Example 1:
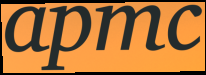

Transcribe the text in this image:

apmc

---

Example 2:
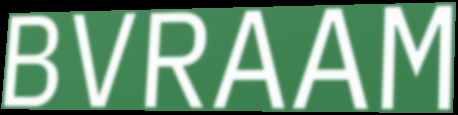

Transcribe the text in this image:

BVRAAM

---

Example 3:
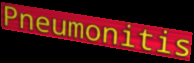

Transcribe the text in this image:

Pneumonitis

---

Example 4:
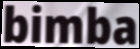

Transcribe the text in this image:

bimba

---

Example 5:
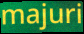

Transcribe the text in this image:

majuri